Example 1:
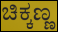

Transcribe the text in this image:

ಚಿಕ್ಕಣ್ಣ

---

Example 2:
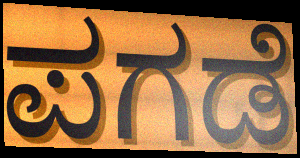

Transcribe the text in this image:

ಪಗಡೆ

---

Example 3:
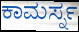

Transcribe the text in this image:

ಕಾಮರ್ಸ್ನ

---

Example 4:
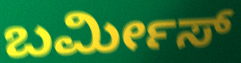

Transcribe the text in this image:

ಬರ್ಮೀಸ್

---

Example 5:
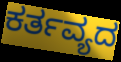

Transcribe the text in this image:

ಕರ್ತವ್ಯದ